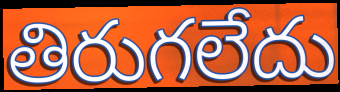
తిరుగలేదు